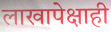
लाखापेक्षाही